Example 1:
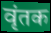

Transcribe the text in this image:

वृंतक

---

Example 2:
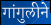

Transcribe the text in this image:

गांगुलीने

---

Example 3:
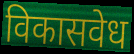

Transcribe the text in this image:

विकासवेध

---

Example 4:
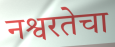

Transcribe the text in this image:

नश्वरतेचा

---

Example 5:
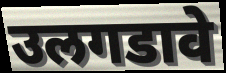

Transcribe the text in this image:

उलगडावे